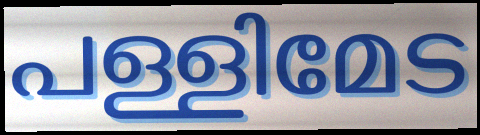
പള്ളിമേട